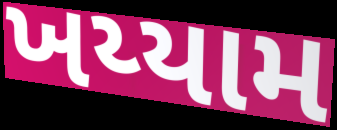
ખય્યામ